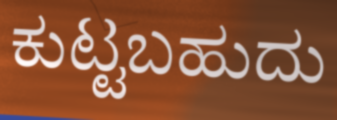
ಕುಟ್ಟಬಹುದು